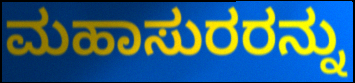
ಮಹಾಸುರರನ್ನು